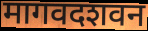
मागवदशवन